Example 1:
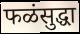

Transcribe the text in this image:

फळंसुद्धा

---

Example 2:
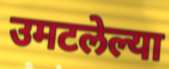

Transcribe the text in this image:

उमटलेल्या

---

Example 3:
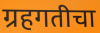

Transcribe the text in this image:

ग्रहगतीचा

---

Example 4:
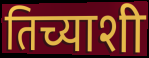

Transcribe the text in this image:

तिच्याशी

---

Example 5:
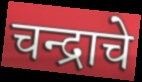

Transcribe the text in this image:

चन्द्राचे